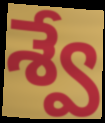
శ్వే